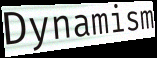
Dynamism